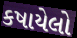
કષાયેલો